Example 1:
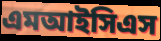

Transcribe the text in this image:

এমআইসিএস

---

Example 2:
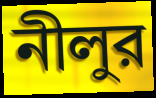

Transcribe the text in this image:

নীলুর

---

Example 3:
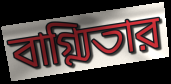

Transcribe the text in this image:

বাগ্মিতার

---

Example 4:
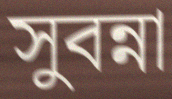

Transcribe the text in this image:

সুবন্না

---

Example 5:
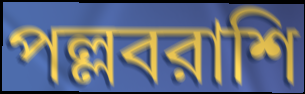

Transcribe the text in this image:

পল্লবরাশি